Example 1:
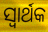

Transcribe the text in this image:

ସ୍ବାର୍ଥକ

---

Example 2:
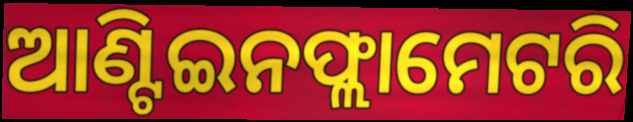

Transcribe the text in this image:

ଆଣ୍ଟିଇନଫ୍ଲାମେଟରି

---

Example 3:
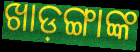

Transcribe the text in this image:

ଖାଡ଼ଙ୍ଗାଙ୍କ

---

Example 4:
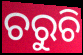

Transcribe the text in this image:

ଚରୁଚି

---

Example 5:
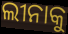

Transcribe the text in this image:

ଲୀନାକୁ